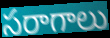
సరాగాలు